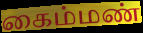
கைம்மண்